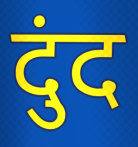
दुंद